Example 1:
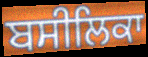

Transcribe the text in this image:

ਬਸੀਲਿਕਾ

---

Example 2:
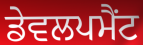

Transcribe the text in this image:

ਡੇਵਲਪਮੈਂਟ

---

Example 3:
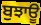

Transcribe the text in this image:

ਬੁਝਾਊ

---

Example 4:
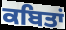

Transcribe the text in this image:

ਕਬਿਤਾਂ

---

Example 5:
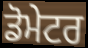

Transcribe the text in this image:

ਡੋਮੇਟਰ